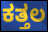
ಕತ್ತಲ